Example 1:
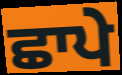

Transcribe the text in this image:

ਛਾਪੇ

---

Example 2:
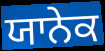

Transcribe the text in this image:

ਯਾਨੇਕ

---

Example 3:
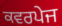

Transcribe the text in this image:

ਕਵਰਪੇਜ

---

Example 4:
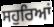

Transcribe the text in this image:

ਸਹੁਰਿਆਂ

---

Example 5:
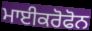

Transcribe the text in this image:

ਮਾਈਕਰੋਫੋਨ